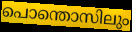
പൊന്തൊസിലും